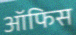
ऑफिस